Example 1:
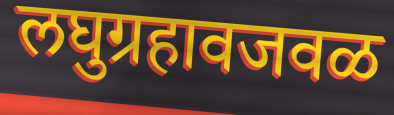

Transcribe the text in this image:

लघुग्रहावजवळ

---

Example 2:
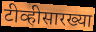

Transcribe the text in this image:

टीव्हीसारख्या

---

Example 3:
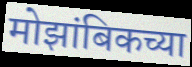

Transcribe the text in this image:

मोझांबिकच्या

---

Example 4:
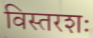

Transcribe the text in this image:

विस्तरशः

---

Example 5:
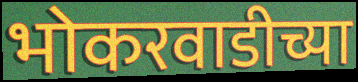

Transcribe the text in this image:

भोकरवाडीच्या